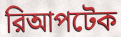
রিআপটেক